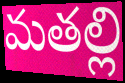
మతల్లి